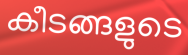
കീടങ്ങളുടെ